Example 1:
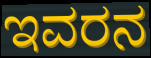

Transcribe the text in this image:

ಇವರನ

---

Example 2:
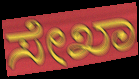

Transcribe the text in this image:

ಸೇಖಾ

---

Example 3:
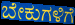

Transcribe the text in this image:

ಬೇಕುಗಳಿಗೆ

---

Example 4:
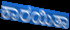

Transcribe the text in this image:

ಕಾರಯಿತಾ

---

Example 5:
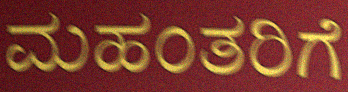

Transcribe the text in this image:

ಮಹಂತರಿಗೆ